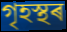
গৃহস্থৰ